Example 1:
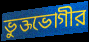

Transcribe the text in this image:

ভুক্তভোগীর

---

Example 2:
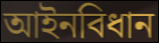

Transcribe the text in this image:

আইনবিধান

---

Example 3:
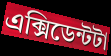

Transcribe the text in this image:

এক্সিডেন্টটা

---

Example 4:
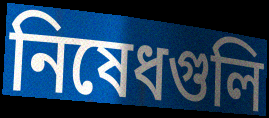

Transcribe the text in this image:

নিষেধগুলি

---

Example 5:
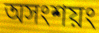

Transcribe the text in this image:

অসংশয়ং